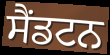
ਸੈਂਡਟਨ